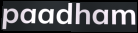
paadham